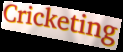
Cricketing